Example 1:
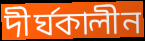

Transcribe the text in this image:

দীর্ঘকালীন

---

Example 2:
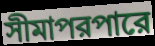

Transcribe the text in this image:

সীমাপরপারে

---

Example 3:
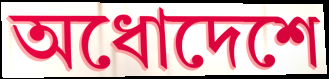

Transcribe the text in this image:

অধোদেশে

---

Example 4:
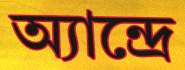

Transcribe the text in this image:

অ্যান্দ্রে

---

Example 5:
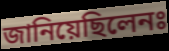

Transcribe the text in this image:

জানিয়েছিলেনঃ